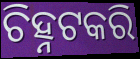
ଚିହ୍ନଟକରି